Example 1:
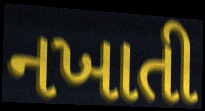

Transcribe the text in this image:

નખાતી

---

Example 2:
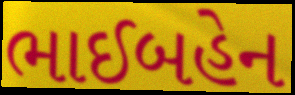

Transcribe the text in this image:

ભાઈબહેન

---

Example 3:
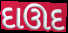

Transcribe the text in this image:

દાઊદ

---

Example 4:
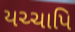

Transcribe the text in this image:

યચ્ચાપિ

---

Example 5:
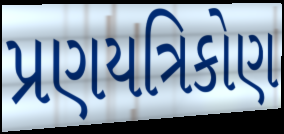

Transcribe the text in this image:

પ્રણયત્રિકોણ